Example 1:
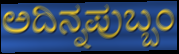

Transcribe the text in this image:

ಅದಿನ್ನಪುಬ್ಬಂ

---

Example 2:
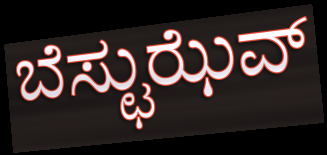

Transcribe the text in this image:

ಬೆಸ್ಟುಝೆವ್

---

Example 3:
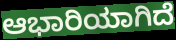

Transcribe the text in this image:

ಆಭಾರಿಯಾಗಿದೆ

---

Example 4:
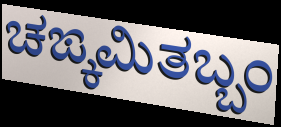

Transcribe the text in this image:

ಚಙ್ಕಮಿತಬ್ಬಂ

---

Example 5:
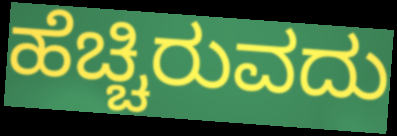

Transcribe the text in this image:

ಹೆಚ್ಚಿರುವದು